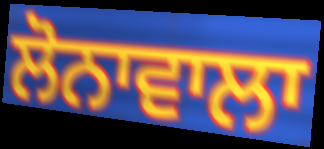
ਲੋਨਾਵਾਲਾ